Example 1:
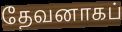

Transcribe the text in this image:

தேவனாகப்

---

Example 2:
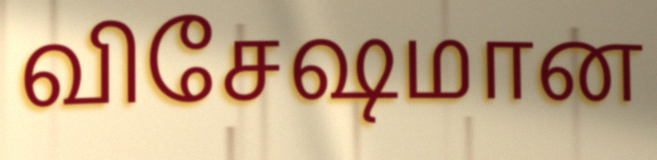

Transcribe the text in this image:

விசேஷமான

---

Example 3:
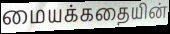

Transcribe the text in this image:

மையக்கதையின்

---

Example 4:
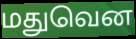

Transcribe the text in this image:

மதுவென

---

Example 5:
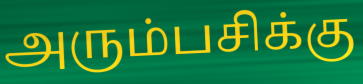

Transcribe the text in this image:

அரும்பசிக்கு